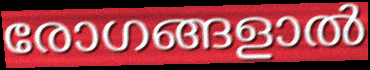
രോഗങ്ങളാൽ